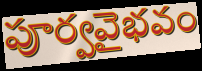
పూర్వవైభవం